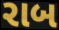
રાબ